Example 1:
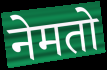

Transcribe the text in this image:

नेमतो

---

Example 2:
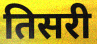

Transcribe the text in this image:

तिसरी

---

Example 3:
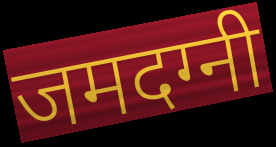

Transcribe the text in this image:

जमदग्नी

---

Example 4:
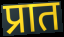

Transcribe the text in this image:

प्रात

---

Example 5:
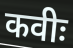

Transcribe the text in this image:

कवीः